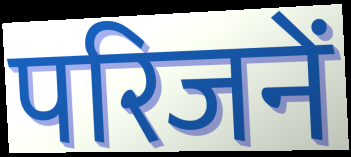
परिजनें